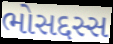
ભોસદ્દસ્સ